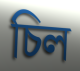
চিল